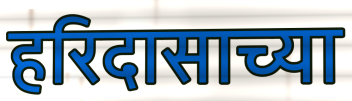
हरिदासाच्या